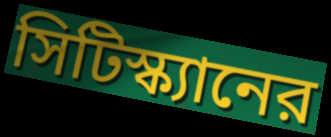
সিটিস্ক্যানের